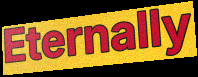
Eternally